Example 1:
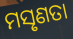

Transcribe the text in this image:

ମସୃଣତା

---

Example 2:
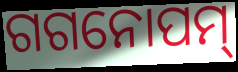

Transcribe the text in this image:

ଗଗନୋପମ୍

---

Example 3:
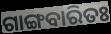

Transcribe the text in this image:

ଗାଙ୍ଗବାରିତଃ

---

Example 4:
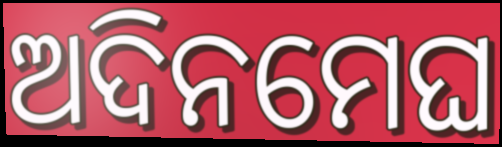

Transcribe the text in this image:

ଅଦିନମେଘ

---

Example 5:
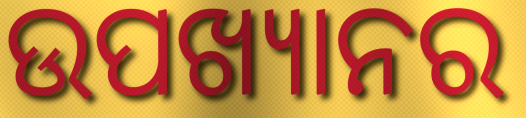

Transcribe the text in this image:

ଉପଖ୍ୟାନର